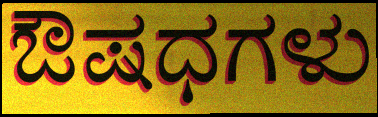
ಔಷಧಗಳು